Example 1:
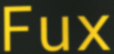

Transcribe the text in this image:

Fux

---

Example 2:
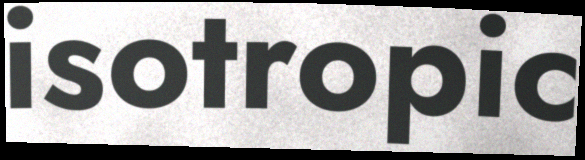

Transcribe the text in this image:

isotropic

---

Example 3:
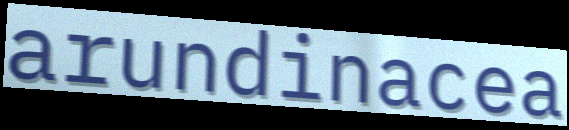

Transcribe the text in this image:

arundinacea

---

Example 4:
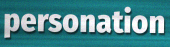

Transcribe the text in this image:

personation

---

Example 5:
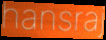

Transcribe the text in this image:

hansraj